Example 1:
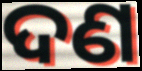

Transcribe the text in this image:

ଦଣ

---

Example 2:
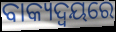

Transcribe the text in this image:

ବାକ୍ୟଦ୍ଵୟରେ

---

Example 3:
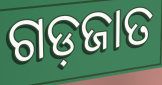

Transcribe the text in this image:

ଗଡ଼ଜାତ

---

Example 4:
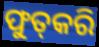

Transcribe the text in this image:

ଫୁତ୍‌କରି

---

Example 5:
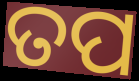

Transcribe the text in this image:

ତପ